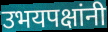
उभयपक्षांनी